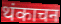
थंकाचन